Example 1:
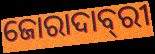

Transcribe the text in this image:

ଜୋରାଦାବ୍‌ରୀ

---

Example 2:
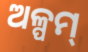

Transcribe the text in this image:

ଅଳ୍ପମ୍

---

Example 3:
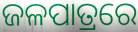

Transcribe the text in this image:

ଜଳପାତ୍ରରେ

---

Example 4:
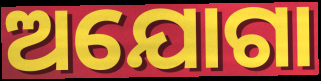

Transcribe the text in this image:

ଅଯୋଗା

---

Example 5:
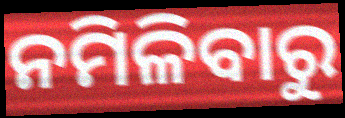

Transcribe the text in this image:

ନମିଳିବାରୁ